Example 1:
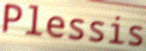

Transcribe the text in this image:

Plessis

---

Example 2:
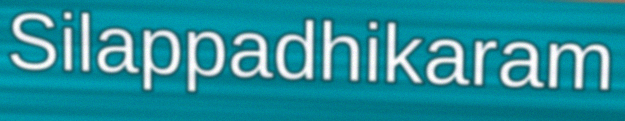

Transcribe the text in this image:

Silappadhikaram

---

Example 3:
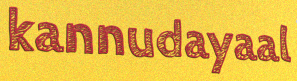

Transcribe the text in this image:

kannudayaal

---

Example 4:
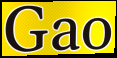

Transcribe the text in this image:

Gao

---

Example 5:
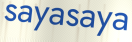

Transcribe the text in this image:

sayasaya